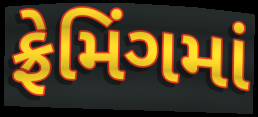
ફ્રેમિંગમાં